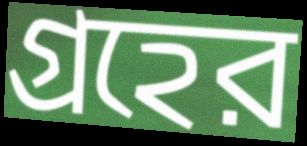
গ্রহের